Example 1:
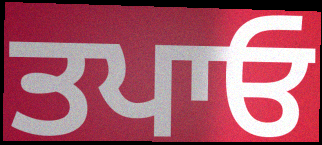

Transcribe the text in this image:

ਤਪਾਓ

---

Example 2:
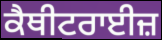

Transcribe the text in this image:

ਕੈਥੀਟਰਾਈਜ਼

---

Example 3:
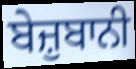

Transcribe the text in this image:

ਬੇਜ਼ੁਬਾਨੀ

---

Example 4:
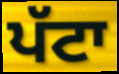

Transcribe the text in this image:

ਪੱਟਾ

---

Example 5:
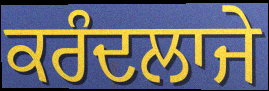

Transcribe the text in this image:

ਕਰੰਦਲਾਜੇ